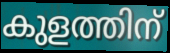
കുളത്തിന്